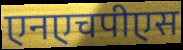
एनएचपीएस